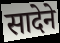
सादेने